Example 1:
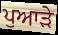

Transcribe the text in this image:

ਪੁਆੜੇ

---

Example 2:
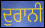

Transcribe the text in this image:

ਦੁਰਾਨੀ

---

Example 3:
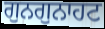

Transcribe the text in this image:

ਗੁਨਗੁਨਾਹਟ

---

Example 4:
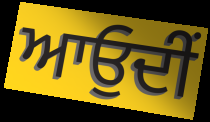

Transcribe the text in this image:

ਆਓੁਦੀਂ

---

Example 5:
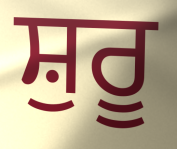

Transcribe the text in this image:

ਸ਼ੁਰੂ